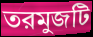
তরমুজটি